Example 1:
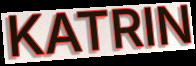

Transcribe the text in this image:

KATRIN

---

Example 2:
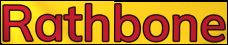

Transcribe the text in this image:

Rathbone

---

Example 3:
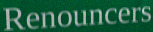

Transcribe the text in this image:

Renouncers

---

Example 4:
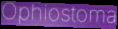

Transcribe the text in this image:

Ophiostoma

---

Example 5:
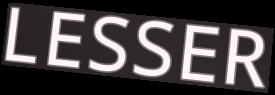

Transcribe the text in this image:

LESSER